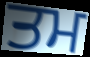
ਤਮ